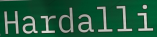
Hardalli